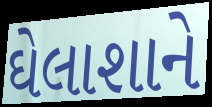
ઘેલાશાને